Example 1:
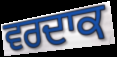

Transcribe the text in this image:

ਵਰਦਾਕ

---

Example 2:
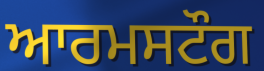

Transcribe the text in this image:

ਆਰਮਸਟੌਗ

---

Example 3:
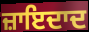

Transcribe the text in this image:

ਜ਼ਾਇਦਾਦ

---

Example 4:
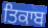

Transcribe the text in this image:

ਤਿਕਾਬ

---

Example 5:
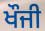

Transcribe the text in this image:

ਖੌਜੀ